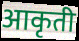
आकृती